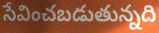
సేవించబడుతున్నది